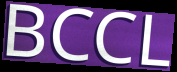
BCCL